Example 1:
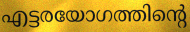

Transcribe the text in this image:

എട്ടരയോഗത്തിന്റെ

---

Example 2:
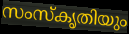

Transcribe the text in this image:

സംസ്കൃതിയും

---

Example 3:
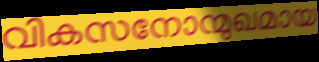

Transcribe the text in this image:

വികസനോന്മുഖമായ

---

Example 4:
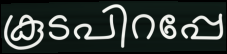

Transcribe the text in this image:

കൂടപിറപ്പേ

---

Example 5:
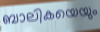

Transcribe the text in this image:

ബാലികയെയും